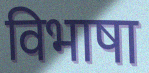
विभाषा